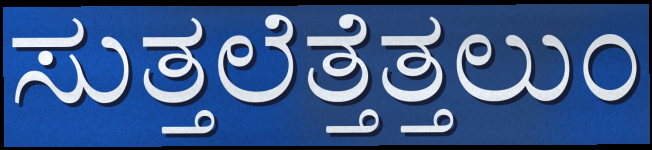
ಸುತ್ತಲೆತ್ತೆತ್ತಲುಂ